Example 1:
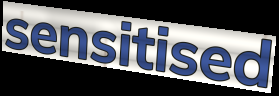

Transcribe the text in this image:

sensitised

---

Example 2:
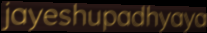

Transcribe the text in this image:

jayeshupadhyaya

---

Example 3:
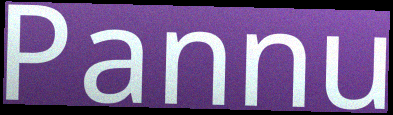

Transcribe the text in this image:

Pannu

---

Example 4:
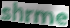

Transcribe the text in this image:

shrme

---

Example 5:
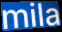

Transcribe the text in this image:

mila